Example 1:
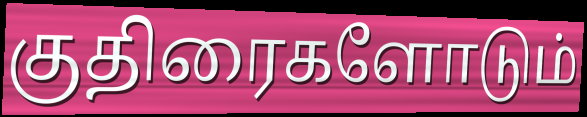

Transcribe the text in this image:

குதிரைகளோடும்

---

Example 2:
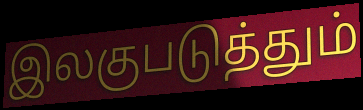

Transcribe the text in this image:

இலகுபடுத்தும்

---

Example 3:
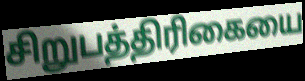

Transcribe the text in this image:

சிறுபத்திரிகையை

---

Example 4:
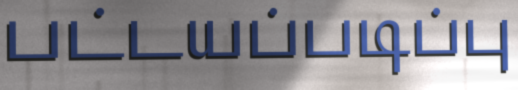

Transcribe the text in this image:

பட்டயப்படிப்பு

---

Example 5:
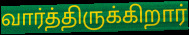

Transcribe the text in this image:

வார்த்திருக்கிறார்